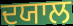
ਦਯਾਲ